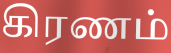
கிரணம்